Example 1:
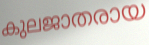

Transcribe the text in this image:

കുലജാതരായ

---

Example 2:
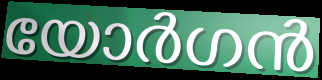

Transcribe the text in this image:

യോർഗൻ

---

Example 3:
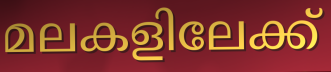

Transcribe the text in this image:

മലകളിലേക്ക്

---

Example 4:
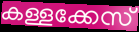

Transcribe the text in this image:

കള്ളക്കേസ്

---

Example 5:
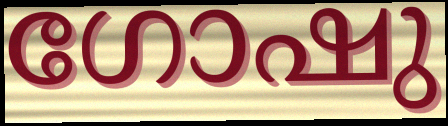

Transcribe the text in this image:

ഗോഷു